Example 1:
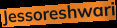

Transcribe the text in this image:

Jessoreshwari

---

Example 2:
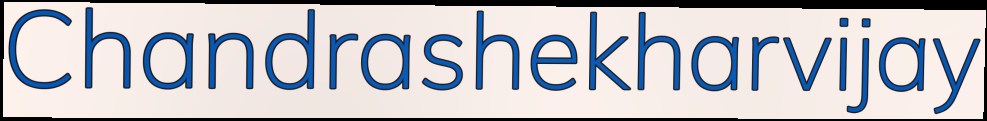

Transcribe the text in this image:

Chandrashekharvijay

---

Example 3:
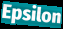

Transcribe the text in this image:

Epsilon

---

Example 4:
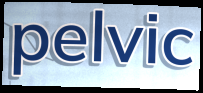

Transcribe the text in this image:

pelvic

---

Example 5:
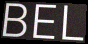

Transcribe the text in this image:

BEL